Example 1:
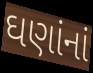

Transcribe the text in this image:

ઘણાંનાં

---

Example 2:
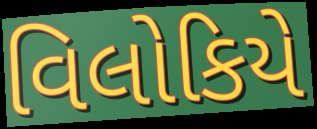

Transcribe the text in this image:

વિલોકિયે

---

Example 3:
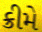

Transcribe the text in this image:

ક્રીમે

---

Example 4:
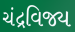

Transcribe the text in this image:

ચંદ્રવિજ્ય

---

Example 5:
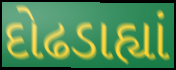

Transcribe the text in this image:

દોઢડાહ્યાં